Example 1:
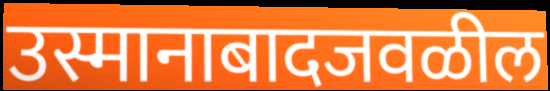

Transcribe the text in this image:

उस्मानाबादजवळील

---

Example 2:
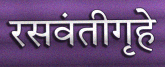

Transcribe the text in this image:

रसवंतीगृहे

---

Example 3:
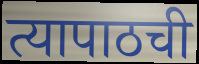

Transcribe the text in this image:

त्यापाठची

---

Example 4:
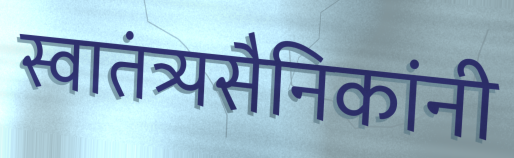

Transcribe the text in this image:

स्वातंत्र्यसैनिकांनी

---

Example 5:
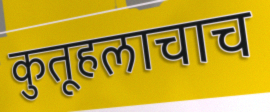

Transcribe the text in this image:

कुतूहलाचाच